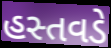
હસ્તવડે